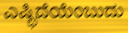
ಎಷ್ಟಿದೆಯೆಂಬುದು